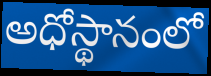
అధోస్థానంలో